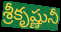
శ్రీకృష్ణునీ